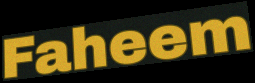
Faheem